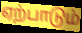
ஏற்பாடும்